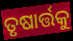
ତୃଷାର୍ତ୍ତକୁ